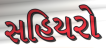
સહિયરો